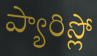
ప్యారిస్లో